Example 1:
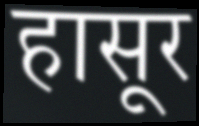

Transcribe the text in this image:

हासूर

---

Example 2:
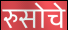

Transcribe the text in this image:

रुसोचे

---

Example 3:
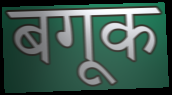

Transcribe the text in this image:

बगूक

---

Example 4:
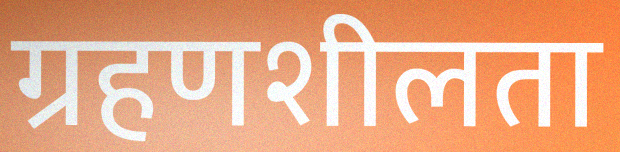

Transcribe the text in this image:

ग्रहणशीलता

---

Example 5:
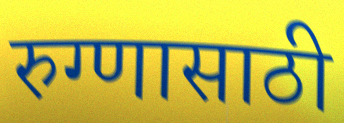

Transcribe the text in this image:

रुग्णासाठी